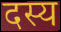
दस्य